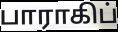
பாராகிப்